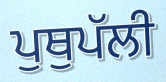
ਪੁਥੁਪੱਲੀ